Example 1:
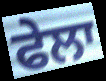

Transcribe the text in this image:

ਫੇਲਾ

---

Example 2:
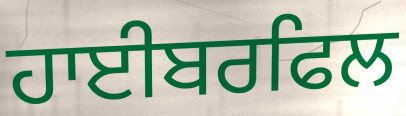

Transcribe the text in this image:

ਹਾਈਬਰਫਿਲ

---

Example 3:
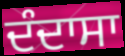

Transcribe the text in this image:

ਦੰਦਾਸਾ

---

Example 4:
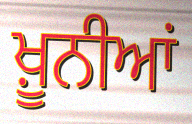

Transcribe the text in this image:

ਖ਼ੂਨੀਆਂ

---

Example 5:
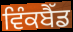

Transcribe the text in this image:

ਵਿੰਕਬੈੱਡ